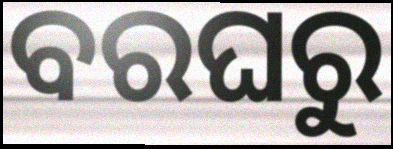
ବରଘରୁ